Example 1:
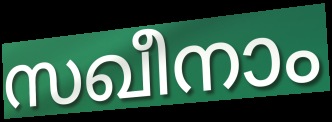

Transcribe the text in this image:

സഖീനാം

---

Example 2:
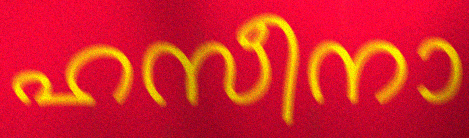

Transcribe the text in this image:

ഹസീനാ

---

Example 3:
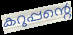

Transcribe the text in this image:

കറുപ്പന്റെ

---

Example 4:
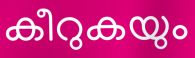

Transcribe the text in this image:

കീറുകയും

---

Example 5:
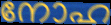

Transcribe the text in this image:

നോഹ